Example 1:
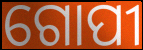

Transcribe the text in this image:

ଗୋପୀ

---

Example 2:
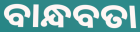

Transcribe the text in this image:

ବାନ୍ଧବତା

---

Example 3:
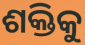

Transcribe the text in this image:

ଶକ୍ତିକୁ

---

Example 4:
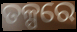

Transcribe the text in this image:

ତଳ୍ପରେ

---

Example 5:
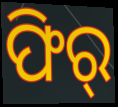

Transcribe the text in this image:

ଫିର୍